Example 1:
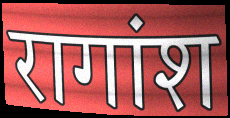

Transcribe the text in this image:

रागांश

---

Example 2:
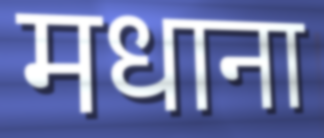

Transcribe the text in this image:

मधाना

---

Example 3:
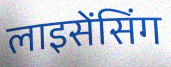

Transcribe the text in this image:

लाइसेंसिंग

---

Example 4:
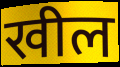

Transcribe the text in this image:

खील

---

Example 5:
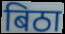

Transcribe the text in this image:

बिठा